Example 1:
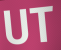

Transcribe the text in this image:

UT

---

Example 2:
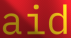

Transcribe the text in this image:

aid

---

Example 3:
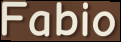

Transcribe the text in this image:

Fabio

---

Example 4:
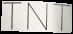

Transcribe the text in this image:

TNT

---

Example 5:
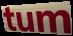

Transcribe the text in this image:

tum